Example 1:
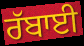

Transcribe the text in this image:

ਰੱਬਾਈ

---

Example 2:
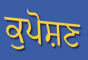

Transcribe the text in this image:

ਕੁਪੋਸ਼ਣ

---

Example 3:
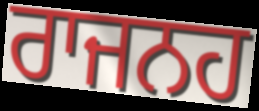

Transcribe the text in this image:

ਰਾਜਨਹ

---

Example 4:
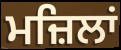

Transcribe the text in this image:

ਮਜ਼ਿਲਾਂ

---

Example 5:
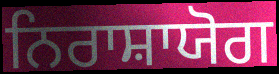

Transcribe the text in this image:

ਨਿਰਾਸ਼ਾਯੋਗ